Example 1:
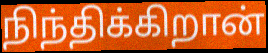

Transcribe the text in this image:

நிந்திக்கிறான்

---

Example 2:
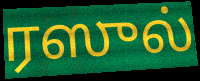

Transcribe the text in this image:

ரஸுல்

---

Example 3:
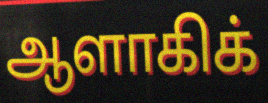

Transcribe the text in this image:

ஆளாகிக்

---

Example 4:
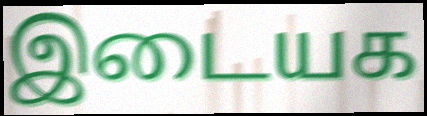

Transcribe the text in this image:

இடையக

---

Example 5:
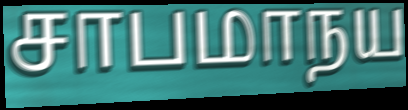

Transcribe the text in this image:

சாபமாநய